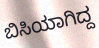
ಬಿಸಿಯಾಗಿದ್ದ